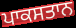
ਪਾਕਸਤਾਨ